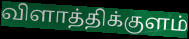
விளாத்திக்குளம்